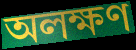
অলক্ষণ